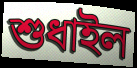
শুধাইল